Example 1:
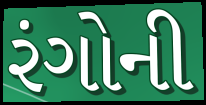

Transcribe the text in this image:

રંગોની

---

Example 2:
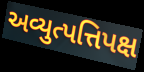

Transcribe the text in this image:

અવ્યુત્પત્તિપક્ષ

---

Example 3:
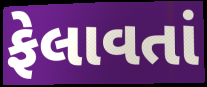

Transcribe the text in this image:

ફેલાવતાં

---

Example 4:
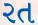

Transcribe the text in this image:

રત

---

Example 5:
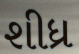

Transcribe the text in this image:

શીધ્ર